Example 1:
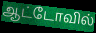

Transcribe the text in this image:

ஆட்டோவில்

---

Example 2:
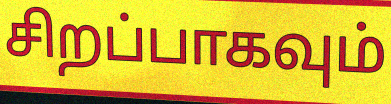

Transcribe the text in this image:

சிறப்பாகவும்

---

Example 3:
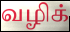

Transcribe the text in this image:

வழிக்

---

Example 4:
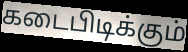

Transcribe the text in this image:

கடைபிடிக்கும்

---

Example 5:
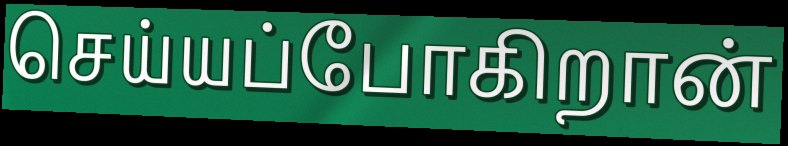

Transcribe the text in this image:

செய்யப்போகிறான்